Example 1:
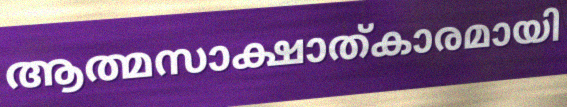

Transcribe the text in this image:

ആത്മസാക്ഷാത്കാരമായി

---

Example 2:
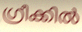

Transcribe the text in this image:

ഗ്രീക്കിൽ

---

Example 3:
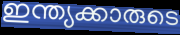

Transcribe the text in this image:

ഇന്ത്യക്കാരുടെ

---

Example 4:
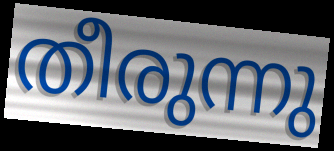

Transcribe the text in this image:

തീരുന്നു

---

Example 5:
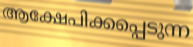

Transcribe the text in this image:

ആക്ഷേപിക്കപ്പെടുന്ന